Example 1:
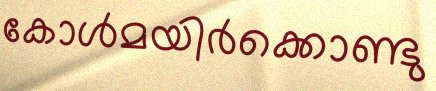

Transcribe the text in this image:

കോൾമയിർക്കൊണ്ടു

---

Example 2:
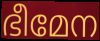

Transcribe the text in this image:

ഭീമേന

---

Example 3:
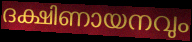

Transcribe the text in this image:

ദക്ഷിണായനവും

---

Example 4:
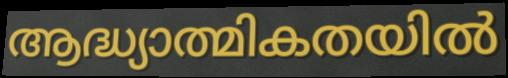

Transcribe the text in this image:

ആദ്ധ്യാത്മികതയിൽ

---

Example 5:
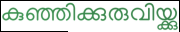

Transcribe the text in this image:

കുഞ്ഞിക്കുരുവിയ്ക്കു